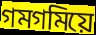
গমগমিয়ে